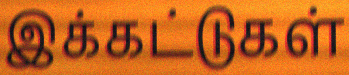
இக்கட்டுகள்